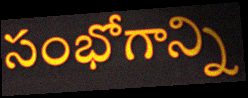
సంభోగాన్ని